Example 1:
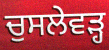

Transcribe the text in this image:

ਚੁਸਲੇਵੜ੍ਹ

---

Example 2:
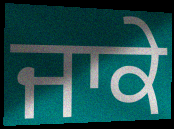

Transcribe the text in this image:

ਜਾਕੇ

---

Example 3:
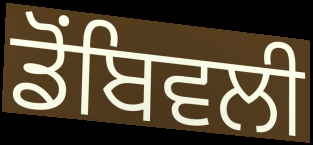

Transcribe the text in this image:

ਡੋਂਬਿਵਲੀ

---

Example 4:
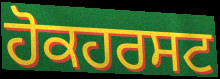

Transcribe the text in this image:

ਹੋਕਹਰਸਟ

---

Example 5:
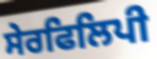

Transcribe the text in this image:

ਸੇਰਫਿਲਿਪੀ